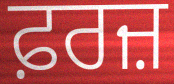
ਫ਼ਰਜ਼